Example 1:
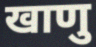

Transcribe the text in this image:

खाणु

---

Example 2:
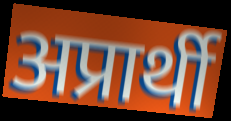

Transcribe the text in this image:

अप्रार्थी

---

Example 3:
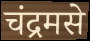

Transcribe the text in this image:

चंद्रमसे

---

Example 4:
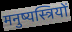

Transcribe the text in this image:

मनुष्यस्त्रियों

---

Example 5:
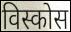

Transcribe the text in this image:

विस्कोस